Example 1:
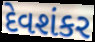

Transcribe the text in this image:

દેવશંકર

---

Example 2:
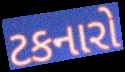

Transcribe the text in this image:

ટકનારો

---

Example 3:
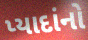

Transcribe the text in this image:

પ્યાદાંનો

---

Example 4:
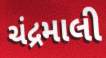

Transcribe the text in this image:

ચંદ્રમાલી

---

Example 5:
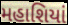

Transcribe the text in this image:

મહાશિયાં